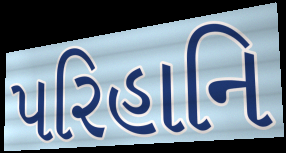
પરિહાનિ